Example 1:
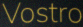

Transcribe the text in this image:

Vostro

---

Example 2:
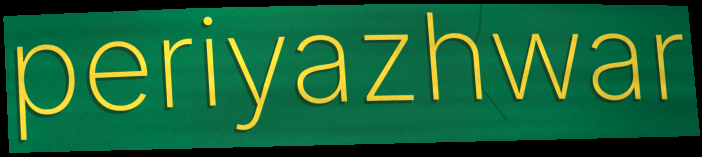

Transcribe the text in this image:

periyazhwar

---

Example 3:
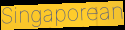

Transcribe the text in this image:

Singaporean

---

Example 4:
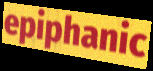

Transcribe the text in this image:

epiphanic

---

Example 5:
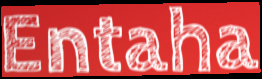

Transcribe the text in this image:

Entaha